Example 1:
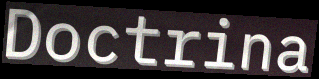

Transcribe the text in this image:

Doctrina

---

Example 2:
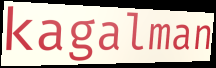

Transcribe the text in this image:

kagalman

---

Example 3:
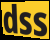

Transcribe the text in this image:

dss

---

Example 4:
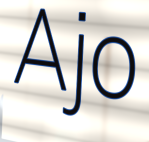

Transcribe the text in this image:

Ajo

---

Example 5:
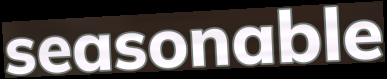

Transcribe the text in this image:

seasonable